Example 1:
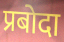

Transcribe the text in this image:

प्रबोदा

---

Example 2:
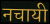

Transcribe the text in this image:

नचायी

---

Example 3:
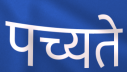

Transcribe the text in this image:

पच्यते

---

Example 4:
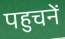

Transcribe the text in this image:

पहुचनें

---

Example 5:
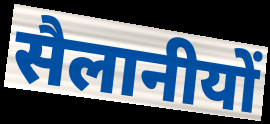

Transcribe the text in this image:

सैलानीयों